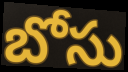
బోసు